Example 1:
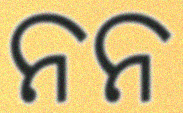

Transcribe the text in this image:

ନନ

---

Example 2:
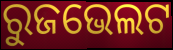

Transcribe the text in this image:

ରୁଜଭେଲଟ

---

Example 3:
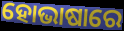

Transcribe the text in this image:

ହୋଭାଷାରେ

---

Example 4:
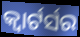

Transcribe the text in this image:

କ୍ବାର୍ଟର୍ସର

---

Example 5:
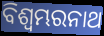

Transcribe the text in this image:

ବିଶ୍ୱମ୍ଭରନାଥ